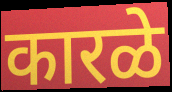
कारळे